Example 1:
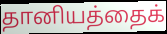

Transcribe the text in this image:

தானியத்தைக்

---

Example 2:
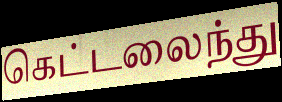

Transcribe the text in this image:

கெட்டலைந்து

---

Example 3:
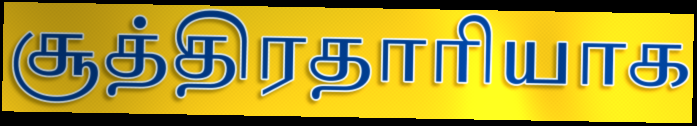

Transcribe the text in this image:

சூத்திரதாரியாக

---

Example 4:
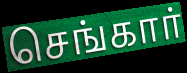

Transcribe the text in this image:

செங்கார்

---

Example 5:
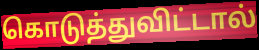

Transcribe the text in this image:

கொடுத்துவிட்டால்